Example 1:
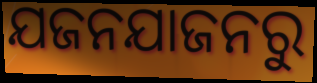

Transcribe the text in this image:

ଯଜନଯାଜନରୁ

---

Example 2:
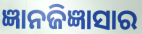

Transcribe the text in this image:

ଜ୍ଞାନଜିଜ୍ଞାସାର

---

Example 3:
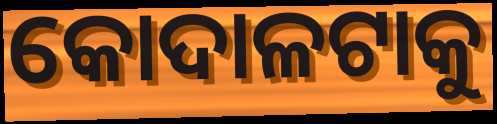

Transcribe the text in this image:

କୋଦାଳଟାକୁ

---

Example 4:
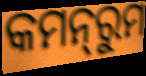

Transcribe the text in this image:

କମନ୍‌ରୁମ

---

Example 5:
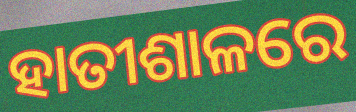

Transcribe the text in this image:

ହାତୀଶାଳରେ